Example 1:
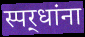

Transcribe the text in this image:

स्पर्धांना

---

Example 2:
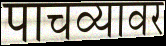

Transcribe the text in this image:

पाचव्यावर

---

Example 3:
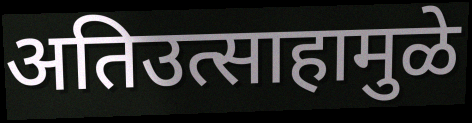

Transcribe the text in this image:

अतिउत्साहामुळे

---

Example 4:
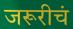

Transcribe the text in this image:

जरूरीचं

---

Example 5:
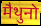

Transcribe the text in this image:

मैथुनो